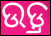
ଉଡ଼୍ର